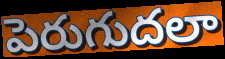
పెరుగుదలా